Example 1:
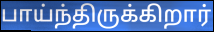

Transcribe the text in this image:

பாய்ந்திருக்கிறார்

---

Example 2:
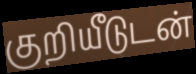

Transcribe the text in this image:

குறியீடுடன்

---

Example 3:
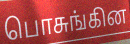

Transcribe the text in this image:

பொசுங்கின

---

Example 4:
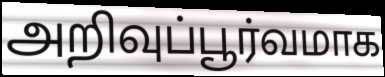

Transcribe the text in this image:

அறிவுப்பூர்வமாக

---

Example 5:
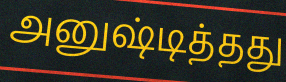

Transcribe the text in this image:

அனுஷ்டித்தது